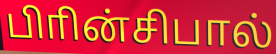
பிரின்சிபால்